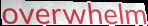
overwhelm